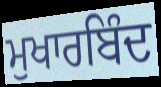
ਮੁਖਾਰਬਿੰਦ